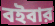
বইবার